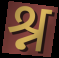
श्न